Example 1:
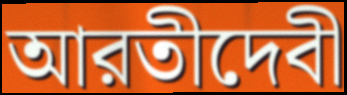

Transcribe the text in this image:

আরতীদেবী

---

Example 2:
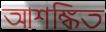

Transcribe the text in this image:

আশঙ্কিত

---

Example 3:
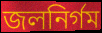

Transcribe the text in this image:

জলনির্গম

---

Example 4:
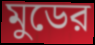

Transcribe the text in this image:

মুডের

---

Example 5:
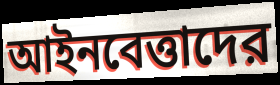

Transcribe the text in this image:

আইনবেত্তাদের